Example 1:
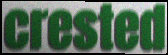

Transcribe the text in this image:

crested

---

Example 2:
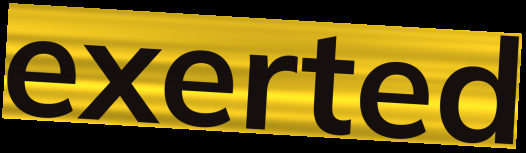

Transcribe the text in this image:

exerted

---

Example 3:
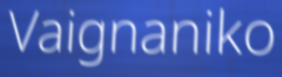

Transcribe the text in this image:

Vaignaniko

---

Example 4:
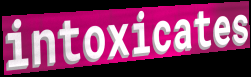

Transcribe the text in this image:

intoxicates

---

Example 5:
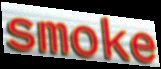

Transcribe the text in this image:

smoke